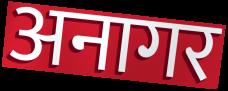
अनागर